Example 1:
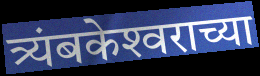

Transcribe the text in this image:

त्र्यंबकेश्‍वराच्या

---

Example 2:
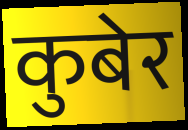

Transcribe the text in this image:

कुबेर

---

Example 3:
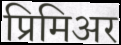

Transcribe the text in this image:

प्रिमिअर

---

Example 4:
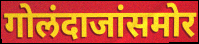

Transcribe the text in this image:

गोलंदाजांसमोर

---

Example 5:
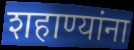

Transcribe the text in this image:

शहाण्यांना